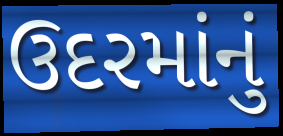
ઉદરમાંનું